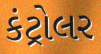
કંટ્રોલર